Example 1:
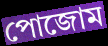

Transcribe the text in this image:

পোজোম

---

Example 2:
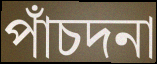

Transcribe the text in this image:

পাঁচদনা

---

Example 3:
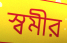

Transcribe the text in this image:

স্বমীর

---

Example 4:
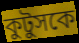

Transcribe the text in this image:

কুটুসকে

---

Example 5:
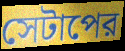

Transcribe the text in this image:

সেটাপের